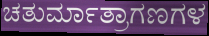
ಚತುರ್ಮಾತ್ರಾಗಣಗಳ